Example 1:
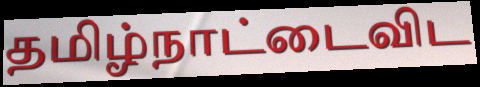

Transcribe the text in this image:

தமிழ்நாட்டைவிட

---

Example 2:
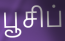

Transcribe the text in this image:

பூசிப்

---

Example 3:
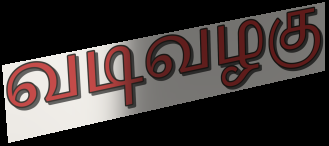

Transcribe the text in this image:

வடிவழகு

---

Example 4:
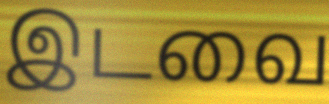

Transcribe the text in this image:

இடவை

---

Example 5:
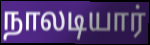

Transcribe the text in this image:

நாலடியார்